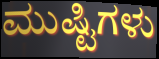
ಮುಷ್ಟಿಗಳು